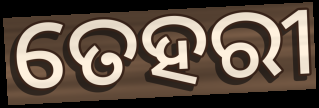
ତେହରୀ